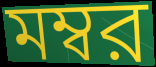
মম্বর